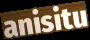
anisitu